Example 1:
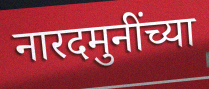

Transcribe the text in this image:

नारदमुनींच्या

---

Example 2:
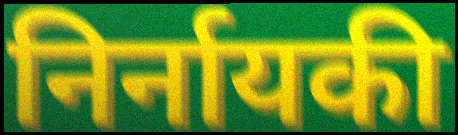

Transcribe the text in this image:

निर्नायकी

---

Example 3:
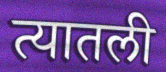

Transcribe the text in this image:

त्यातली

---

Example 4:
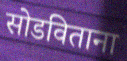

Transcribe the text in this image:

सोडविताना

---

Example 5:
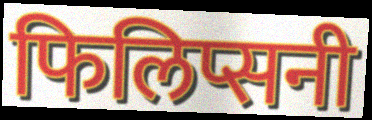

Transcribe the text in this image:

फिलिप्सनी